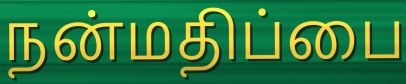
நன்மதிப்பை